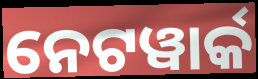
ନେଟୱାର୍କ